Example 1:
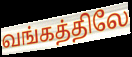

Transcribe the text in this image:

வங்கத்திலே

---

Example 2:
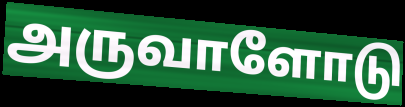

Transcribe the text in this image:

அருவாளோடு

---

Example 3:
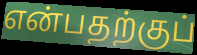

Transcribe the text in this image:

என்பதற்குப்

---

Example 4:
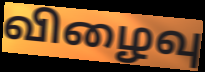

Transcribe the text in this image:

விழைவு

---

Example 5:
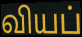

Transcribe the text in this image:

வியப்